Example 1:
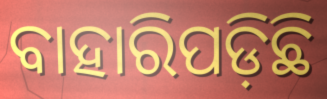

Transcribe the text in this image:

ବାହାରିପଡ଼ିଛି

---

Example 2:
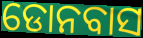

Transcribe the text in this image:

ଡୋନବାସ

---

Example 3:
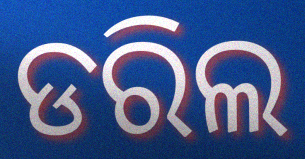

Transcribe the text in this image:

ଡରିଲ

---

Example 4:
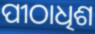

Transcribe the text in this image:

ପୀଠାଧିଶ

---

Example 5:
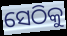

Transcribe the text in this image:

ସେଠିକୁ